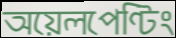
অয়েলপেণ্টিং